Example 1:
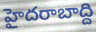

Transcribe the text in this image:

హైదరాబాద్ది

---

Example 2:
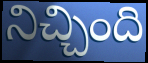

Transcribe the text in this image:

నిచ్చింది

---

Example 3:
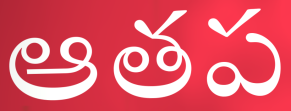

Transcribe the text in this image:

ఆతప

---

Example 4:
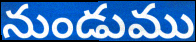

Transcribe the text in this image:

నుండుము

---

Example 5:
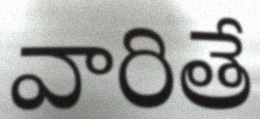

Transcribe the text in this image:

వారితే